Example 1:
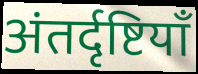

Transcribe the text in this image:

अंतर्दृष्टियाँ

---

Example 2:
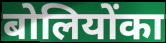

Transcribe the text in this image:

बोलियोंका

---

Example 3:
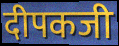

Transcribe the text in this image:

दीपकजी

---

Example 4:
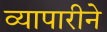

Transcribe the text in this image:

व्यापारीने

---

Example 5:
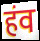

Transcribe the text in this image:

हंव